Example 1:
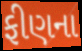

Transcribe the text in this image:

ફીણના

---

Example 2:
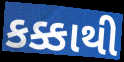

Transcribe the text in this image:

કક્કાથી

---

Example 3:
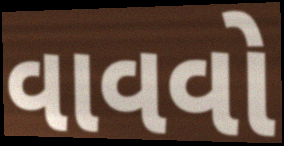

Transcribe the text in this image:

વાવવો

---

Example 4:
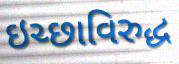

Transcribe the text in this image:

ઇચ્છાવિરુદ્ધ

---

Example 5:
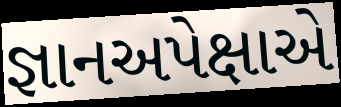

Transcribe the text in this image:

જ્ઞાનઅપેક્ષાએ